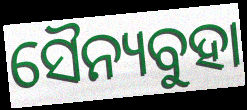
ସୈନ୍ୟବୁହା